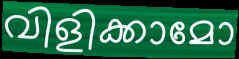
വിളിക്കാമോ